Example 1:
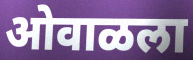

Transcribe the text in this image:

ओवाळला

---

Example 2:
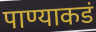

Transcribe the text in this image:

पाण्याकडं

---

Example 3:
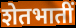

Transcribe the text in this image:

शेतभातीं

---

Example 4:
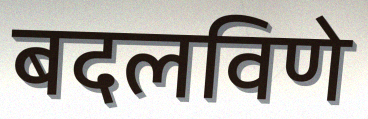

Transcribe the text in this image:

बदलविणे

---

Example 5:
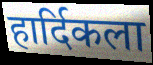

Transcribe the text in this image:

हार्दिकला